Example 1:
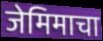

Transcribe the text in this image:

जेमिमाचा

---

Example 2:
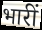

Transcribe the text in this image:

भारीं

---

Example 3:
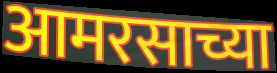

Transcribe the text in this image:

आमरसाच्या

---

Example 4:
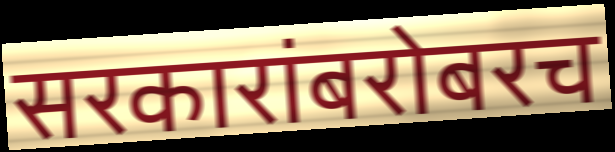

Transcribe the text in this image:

सरकारांबरोबरच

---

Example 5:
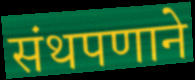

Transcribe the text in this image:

संथपणाने